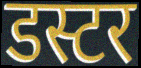
डस्टर